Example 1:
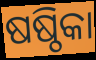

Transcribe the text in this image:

ଷଷ୍ଠିକା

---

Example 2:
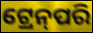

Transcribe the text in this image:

ଟ୍ରେନ୍‌ପରି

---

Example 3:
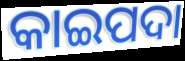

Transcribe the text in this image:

କାଇପଦା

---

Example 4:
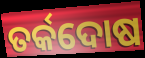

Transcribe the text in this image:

ତର୍କଦୋଷ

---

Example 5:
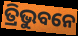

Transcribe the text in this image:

ତ୍ରିଭୁବନେ